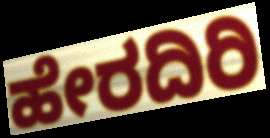
ಹೇರದಿರಿ